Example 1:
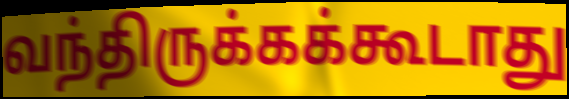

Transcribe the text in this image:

வந்திருக்கக்கூடாது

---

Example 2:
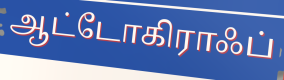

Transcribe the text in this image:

ஆட்டோகிராஃப்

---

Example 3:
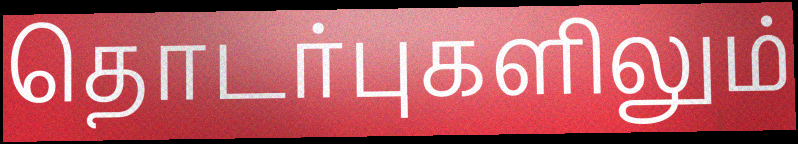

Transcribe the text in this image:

தொடர்புகளிலும்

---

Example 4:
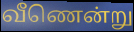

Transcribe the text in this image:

வீணென்று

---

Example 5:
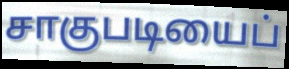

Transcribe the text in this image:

சாகுபடியைப்